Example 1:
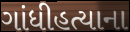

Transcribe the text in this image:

ગાંધીહત્યાના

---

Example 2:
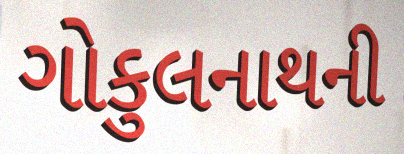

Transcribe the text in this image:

ગોકુલનાથની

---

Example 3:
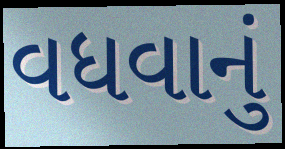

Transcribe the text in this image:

વધવાનું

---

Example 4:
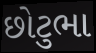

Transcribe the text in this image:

છોટુભા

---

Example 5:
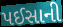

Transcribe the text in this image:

પઈસાની